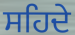
ਸਹਿਦੇ